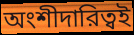
অংশীদারিত্বই